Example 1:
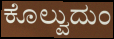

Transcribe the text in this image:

ಕೊಲ್ವುದುಂ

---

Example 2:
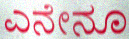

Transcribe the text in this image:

ಎನೇನೂ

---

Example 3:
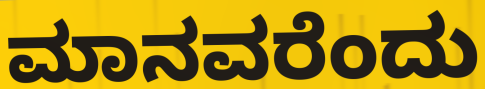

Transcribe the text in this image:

ಮಾನವರೆಂದು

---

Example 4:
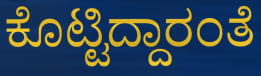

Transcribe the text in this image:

ಕೊಟ್ಟಿದ್ದಾರಂತೆ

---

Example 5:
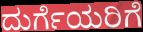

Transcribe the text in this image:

ದುರ್ಗೆಯರಿಗೆ